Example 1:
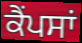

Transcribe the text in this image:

ਕੈਂਪਸਾਂ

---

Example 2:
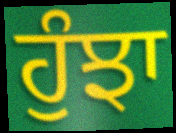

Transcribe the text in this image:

ਹੁੰਝਾ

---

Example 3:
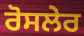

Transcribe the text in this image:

ਰੋਸਲੇਰ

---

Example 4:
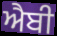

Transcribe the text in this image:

ਐਬੀ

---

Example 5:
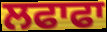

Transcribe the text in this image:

ਲਫਾਫਾ